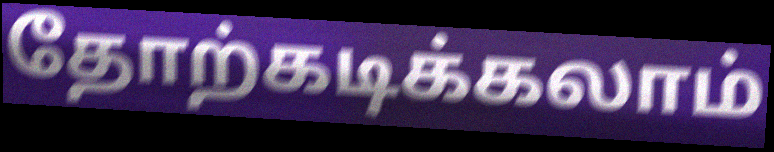
தோற்கடிக்கலாம்